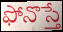
ఫోనొస్తే